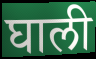
घाली